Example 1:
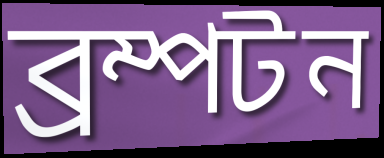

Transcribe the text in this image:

ব্রম্পটন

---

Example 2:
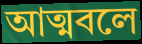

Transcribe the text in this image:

আত্মবলে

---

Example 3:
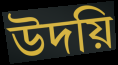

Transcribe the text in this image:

উদয়ি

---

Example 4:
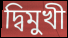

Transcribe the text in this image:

দ্বিমুখী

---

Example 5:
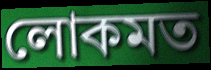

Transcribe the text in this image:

লোকমত